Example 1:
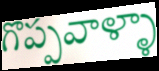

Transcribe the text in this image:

గొప్పవాళ్ళా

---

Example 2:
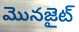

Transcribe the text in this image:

మొనజైట్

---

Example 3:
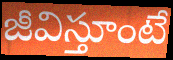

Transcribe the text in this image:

జీవిస్తూంటే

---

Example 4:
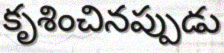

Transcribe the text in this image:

కృశించినప్పుడు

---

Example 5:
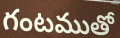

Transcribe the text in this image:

గంటముతో